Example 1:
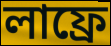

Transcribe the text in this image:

লাফ্রে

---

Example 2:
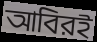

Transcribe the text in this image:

আবিরই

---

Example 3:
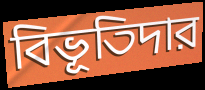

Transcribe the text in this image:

বিভূতিদার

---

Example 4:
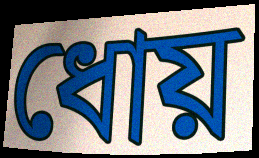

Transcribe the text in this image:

ধোয়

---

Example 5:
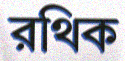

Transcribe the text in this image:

রথিক